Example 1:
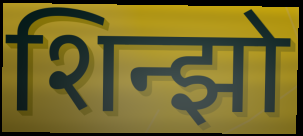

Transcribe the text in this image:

शिन्झो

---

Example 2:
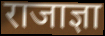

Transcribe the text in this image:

राजाज्ञा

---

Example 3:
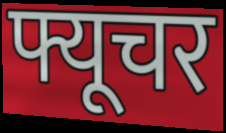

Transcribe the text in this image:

फ्यूचर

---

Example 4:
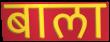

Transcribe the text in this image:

बाला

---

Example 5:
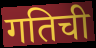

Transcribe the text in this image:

गतिची